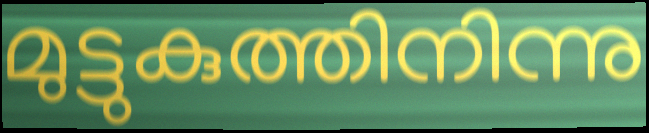
മുട്ടുകുത്തിനിന്നു